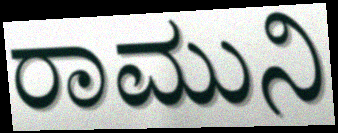
ರಾಮುನಿ